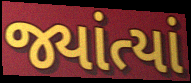
જ્યાંત્યાં